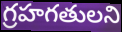
గ్రహగతులని